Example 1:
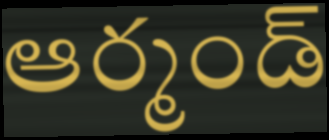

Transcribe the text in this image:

ఆర్మండ్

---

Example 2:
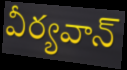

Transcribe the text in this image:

వీర్యవాన్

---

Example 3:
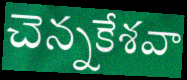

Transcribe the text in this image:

చెన్నకేశవా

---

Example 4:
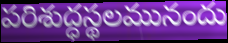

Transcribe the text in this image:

పరిశుద్ధస్థలమునందు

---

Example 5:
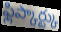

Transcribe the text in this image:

ఫ్లిప్కార్ట్కు